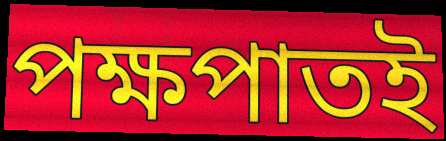
পক্ষপাতই